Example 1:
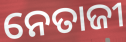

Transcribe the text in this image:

ନେତାଜୀ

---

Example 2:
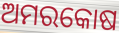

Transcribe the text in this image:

ଅମରକୋଷ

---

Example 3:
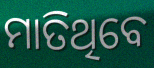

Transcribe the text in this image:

ମାତିଥିବେ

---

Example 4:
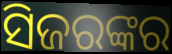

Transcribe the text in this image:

ସିଜରଙ୍କର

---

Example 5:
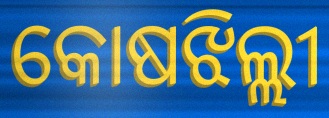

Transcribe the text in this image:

କୋଷଝିଲ୍ଲୀ